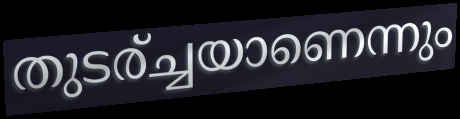
തുടര്ച്ചയാണെന്നും